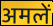
अमलें